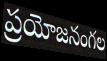
ప్రయోజనంగల